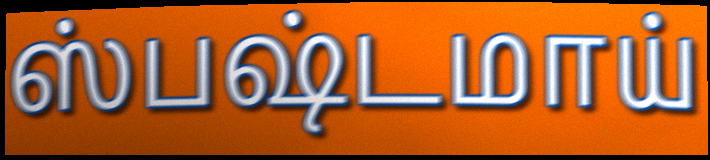
ஸ்பஷ்டமாய்